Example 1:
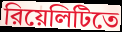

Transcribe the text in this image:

রিয়েলিটিতে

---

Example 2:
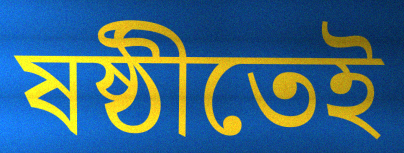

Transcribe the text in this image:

ষষ্ঠীতেই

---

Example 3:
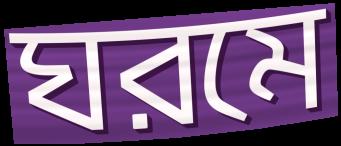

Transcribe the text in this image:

ঘরমে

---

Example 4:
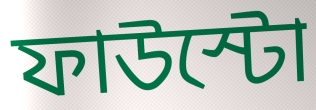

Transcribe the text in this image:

ফাউস্টো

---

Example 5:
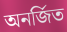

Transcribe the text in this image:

অনর্জিত